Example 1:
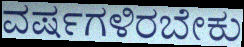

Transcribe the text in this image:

ವರ್ಷಗಳಿರಬೇಕು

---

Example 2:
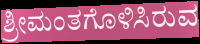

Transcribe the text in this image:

ಶ್ರೀಮಂತಗೊಳಿಸಿರುವ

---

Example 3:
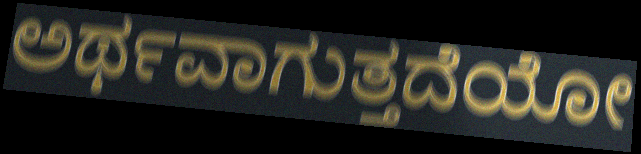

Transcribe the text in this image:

ಅರ್ಥವಾಗುತ್ತದೆಯೋ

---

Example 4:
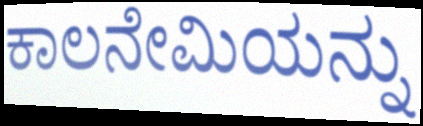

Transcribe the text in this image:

ಕಾಲನೇಮಿಯನ್ನು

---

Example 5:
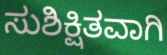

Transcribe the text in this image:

ಸುಶಿಕ್ಷಿತವಾಗಿ